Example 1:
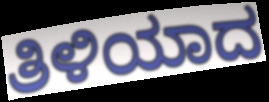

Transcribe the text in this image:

ತಿಳಿಯಾದ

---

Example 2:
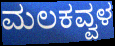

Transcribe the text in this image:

ಮಲಕವ್ವಳ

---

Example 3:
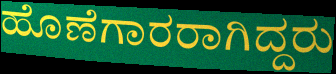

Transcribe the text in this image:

ಹೊಣೆಗಾರರಾಗಿದ್ದರು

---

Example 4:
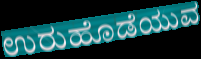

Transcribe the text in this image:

ಉರುಹೊಡೆಯುವ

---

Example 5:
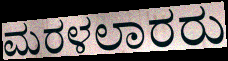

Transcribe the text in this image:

ಮರಳಲಾರರು